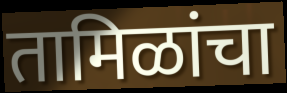
तामिळांचा